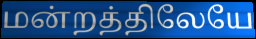
மன்றத்திலேயே